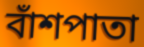
বাঁশপাতা